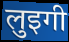
लुइगी